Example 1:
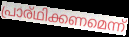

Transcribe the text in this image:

പ്രാര്ഥിക്കണമെന്ന്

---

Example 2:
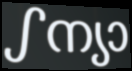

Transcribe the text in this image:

ഽന്യാ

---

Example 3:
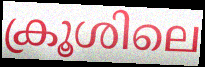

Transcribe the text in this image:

ക്രൂശിലെ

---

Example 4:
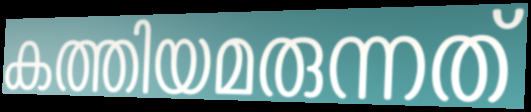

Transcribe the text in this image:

കത്തിയമരുന്നത്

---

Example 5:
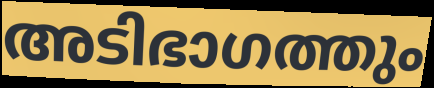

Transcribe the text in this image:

അടിഭാഗത്തും